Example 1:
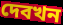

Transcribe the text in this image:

দেবখন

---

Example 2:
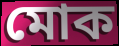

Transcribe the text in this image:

মোক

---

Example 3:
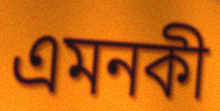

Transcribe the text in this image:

এমনকী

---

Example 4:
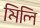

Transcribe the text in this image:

মিলি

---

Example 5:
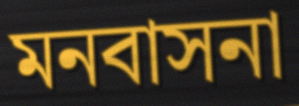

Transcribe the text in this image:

মনবাসনা